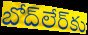
బోద్‌లేర్‌కు